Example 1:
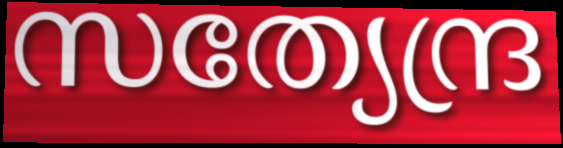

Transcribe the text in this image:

സത്യേന്ദ്ര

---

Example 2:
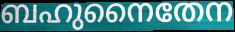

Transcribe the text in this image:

ബഹുനൈതേന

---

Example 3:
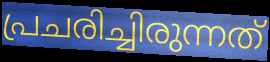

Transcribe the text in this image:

പ്രചരിച്ചിരുന്നത്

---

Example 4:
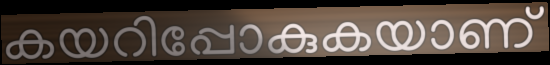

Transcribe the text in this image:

കയറിപ്പോകുകയാണ്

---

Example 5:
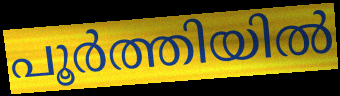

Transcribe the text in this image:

പൂർത്തിയിൽ